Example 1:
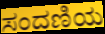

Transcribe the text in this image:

ಸಂದಣಿಯ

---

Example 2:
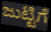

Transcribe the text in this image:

ಜುಟ್ಟಿಗೆ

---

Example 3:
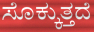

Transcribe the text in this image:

ಸೊಕ್ಕುತ್ತದೆ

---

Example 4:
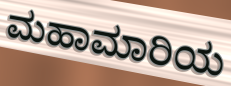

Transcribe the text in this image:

ಮಹಾಮಾರಿಯ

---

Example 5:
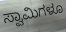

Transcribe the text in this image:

ಸ್ವಾಮಿಗಳೂ